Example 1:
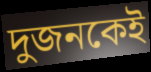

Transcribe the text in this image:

দুজনকেই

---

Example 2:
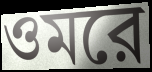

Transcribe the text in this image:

ওমরে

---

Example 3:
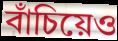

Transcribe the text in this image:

বাঁচিয়েও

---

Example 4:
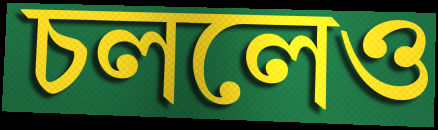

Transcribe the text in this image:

চললেও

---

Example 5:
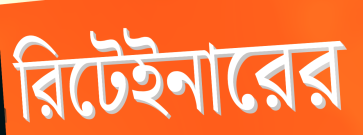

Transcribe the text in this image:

রিটেইনারের